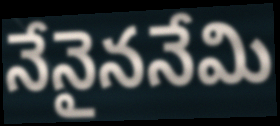
నేనైననేమి